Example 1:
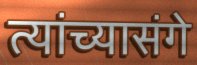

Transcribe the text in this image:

त्यांच्यासंगे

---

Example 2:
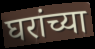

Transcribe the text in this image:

घरांच्या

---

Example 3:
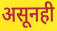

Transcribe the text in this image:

असूनही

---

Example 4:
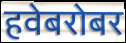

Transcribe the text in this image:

हवेबरोबर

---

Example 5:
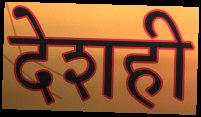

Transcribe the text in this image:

देशही